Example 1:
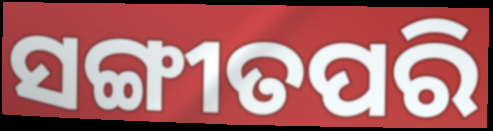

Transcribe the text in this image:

ସଙ୍ଗୀତପରି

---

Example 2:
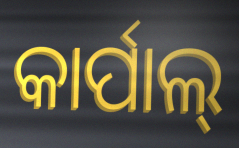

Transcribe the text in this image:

କାର୍ପାଲ୍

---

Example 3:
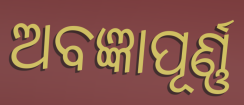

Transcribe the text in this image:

ଅବଜ୍ଞାପୂର୍ଣ୍ଣ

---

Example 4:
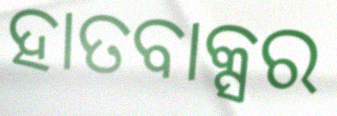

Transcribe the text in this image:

ହାତବାକ୍ସର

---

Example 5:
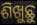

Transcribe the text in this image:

ଶିଖୁଛୁ